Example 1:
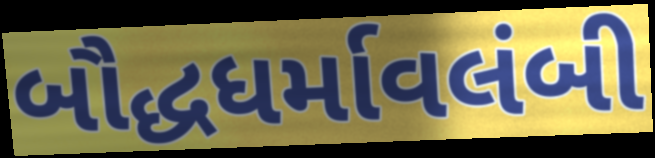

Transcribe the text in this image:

બૌદ્ધધર્માવલંબી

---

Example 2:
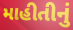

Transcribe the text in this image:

માહીતીનું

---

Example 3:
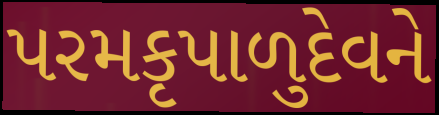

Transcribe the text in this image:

પરમકૃપાળુદેવને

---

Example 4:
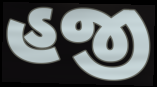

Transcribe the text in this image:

હજી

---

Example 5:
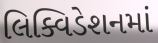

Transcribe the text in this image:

લિક્વિડેશનમાં